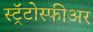
स्ट्रॅटोस्फीअर